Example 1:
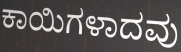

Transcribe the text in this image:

ಕಾಯಿಗಳಾದವು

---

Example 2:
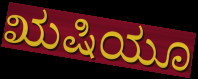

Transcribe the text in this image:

ಋಷಿಯೂ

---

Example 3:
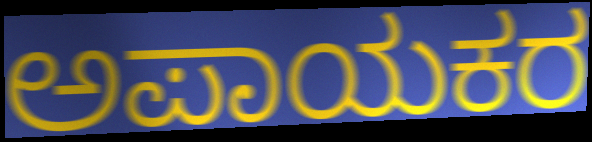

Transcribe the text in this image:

ಅಪಾಯಕರ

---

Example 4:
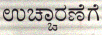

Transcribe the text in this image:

ಉಚ್ಚಾರಣೆಗೆ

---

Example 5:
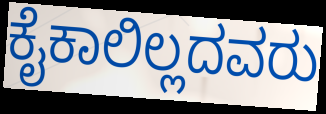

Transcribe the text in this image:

ಕೈಕಾಲಿಲ್ಲದವರು